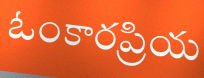
ఓంకారప్రియ